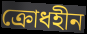
ক্রোধহীন